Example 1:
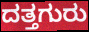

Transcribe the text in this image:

ದತ್ತಗುರು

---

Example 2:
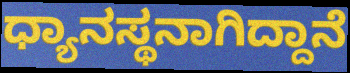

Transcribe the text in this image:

ಧ್ಯಾನಸ್ಥನಾಗಿದ್ದಾನೆ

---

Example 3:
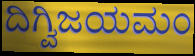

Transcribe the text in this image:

ದಿಗ್ವಿಜಯಮಂ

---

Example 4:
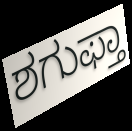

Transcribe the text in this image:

ಶಗುಫ್ತಾ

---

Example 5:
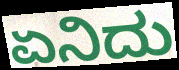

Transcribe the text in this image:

ಏನಿದು